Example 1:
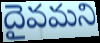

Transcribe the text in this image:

దైవమని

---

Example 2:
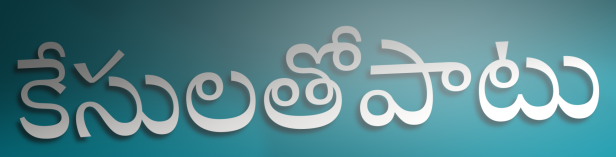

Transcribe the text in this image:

కేసులతోపాటు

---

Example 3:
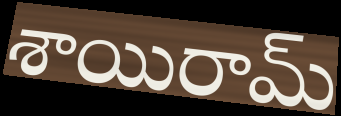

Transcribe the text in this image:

శాయిరామ్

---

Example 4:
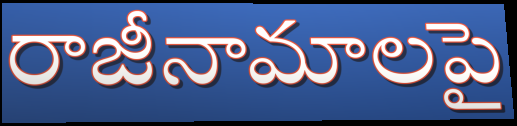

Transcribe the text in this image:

రాజీనామాలపై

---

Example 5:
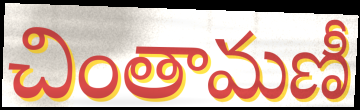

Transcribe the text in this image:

చింతామణీ